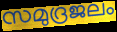
സമുദ്രജലം